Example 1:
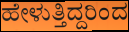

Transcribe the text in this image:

ಹೇಳುತ್ತಿದ್ದರಿಂದ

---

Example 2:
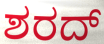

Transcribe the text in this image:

ಶರದ್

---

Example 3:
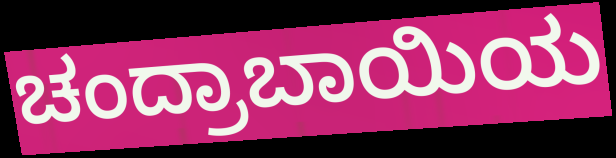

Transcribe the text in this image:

ಚಂದ್ರಾಬಾಯಿಯ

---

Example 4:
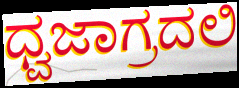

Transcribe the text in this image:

ಧ್ವಜಾಗ್ರದಲಿ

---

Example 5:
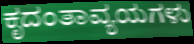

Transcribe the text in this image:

ಕೃದಂತಾವ್ಯಯಗಳು